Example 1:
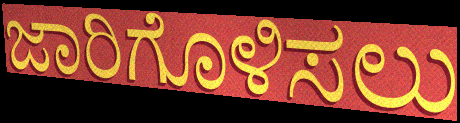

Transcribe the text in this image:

ಜಾರಿಗೊಳಿಸಲು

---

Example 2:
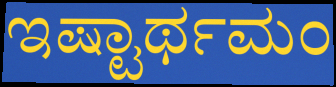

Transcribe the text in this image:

ಇಷ್ಟಾರ್ಥಮಂ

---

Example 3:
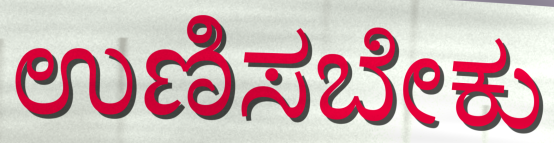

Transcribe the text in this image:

ಉಣಿಸಬೇಕು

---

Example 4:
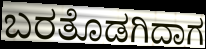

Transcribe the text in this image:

ಬರತೊಡಗಿದಾಗ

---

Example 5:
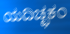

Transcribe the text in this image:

ಯದಿಚ್ಛಕಂ